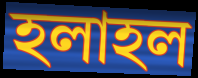
হলাহল